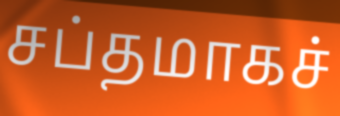
சப்தமாகச்